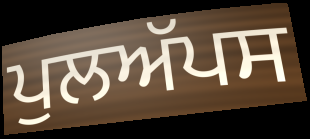
ਪੁਲਅੱਪਸ